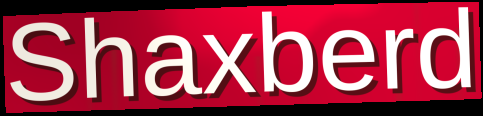
Shaxberd